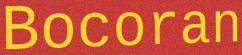
Bocoran